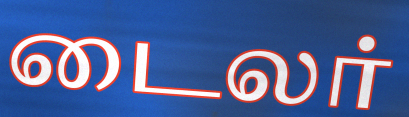
டைலர்